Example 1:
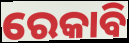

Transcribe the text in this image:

ରେକାବି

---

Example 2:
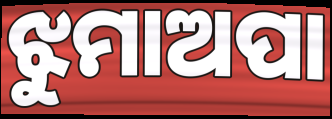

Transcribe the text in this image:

ଝୁମାଅପା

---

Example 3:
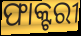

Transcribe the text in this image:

ଫାକ୍ଟରୀ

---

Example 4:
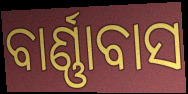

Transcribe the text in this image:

ବାର୍ଣ୍ଣାବାସ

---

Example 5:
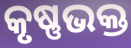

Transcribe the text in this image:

କୃଷ୍ଣଭକ୍ତ